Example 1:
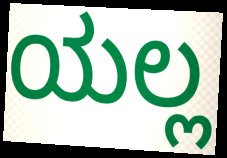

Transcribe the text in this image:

ಯಲ್ಲ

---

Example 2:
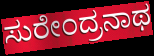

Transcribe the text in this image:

ಸುರೇಂದ್ರನಾಥ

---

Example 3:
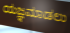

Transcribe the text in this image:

ಯಜ್ಞಮಾಡಲು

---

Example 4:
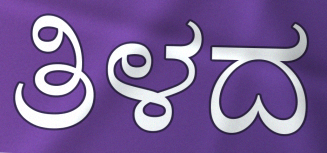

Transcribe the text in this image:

ತಿಳದ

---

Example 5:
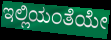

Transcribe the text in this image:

ಇಲ್ಲಿಯಂತೆಯೇ